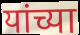
यांच्या